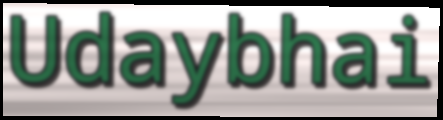
Udaybhai